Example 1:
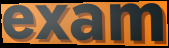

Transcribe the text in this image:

exam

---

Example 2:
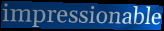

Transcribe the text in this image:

impressionable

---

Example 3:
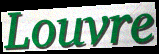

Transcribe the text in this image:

Louvre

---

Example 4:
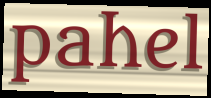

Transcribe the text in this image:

pahel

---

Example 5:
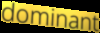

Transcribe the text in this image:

dominant